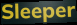
Sleeper